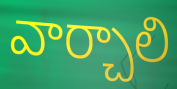
వార్చాలి